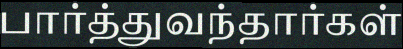
பார்த்துவந்தார்கள்